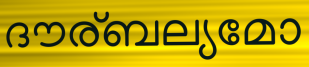
ദൗര്ബല്യമോ